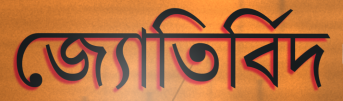
জ্যোতিৰ্বিদ